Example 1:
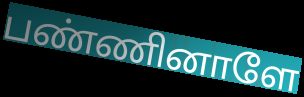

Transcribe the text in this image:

பண்ணினாளே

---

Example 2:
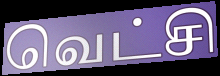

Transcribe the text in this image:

வெட்சி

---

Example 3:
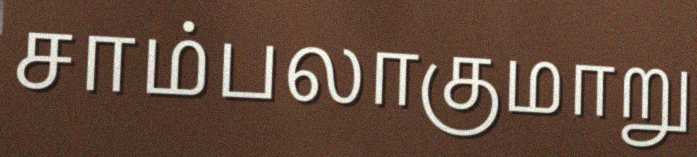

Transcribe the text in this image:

சாம்பலாகுமாறு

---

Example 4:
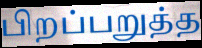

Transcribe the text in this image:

பிறப்பறுத்த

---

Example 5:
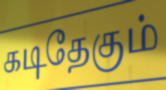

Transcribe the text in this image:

கடிதேகும்